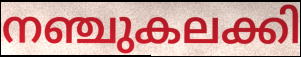
നഞ്ചുകലക്കി